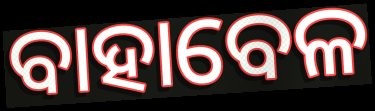
ବାହାବେଳ